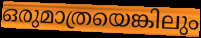
ഒരുമാത്രയെങ്കിലും